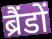
ब्रैंडों